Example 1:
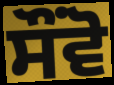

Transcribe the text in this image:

ਸੌਂਵੋ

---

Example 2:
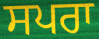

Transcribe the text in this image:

ਸਪਰਾ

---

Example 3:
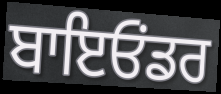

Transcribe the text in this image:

ਬਾਇਓਂਡਰ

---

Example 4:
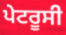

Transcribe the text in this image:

ਪੇਟਰੂਸੀ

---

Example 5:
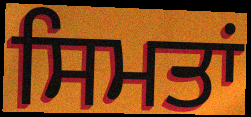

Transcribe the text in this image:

ਸਿਮਤਾਂ